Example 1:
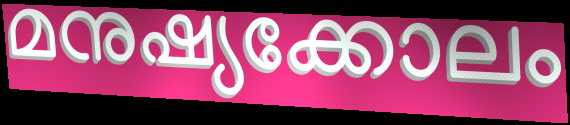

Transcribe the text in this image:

മനുഷ്യക്കോലം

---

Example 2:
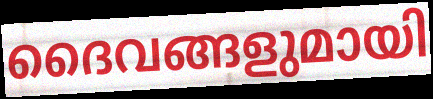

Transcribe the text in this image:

ദൈവങ്ങളുമായി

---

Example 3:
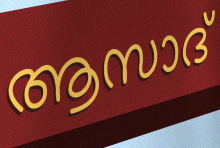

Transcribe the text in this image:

ആസാദ്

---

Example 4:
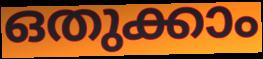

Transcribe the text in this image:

ഒതുക്കാം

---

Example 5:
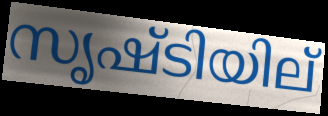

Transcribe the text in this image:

സൃഷ്ടിയില്